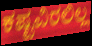
ಕಷ್ಟವಿರಲಿಲ್ಲ